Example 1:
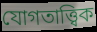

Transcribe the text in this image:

যোগতাত্ত্বিক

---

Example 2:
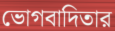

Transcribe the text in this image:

ভোগবাদিতার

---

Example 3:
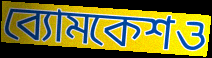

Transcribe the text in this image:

ব্যোমকেশও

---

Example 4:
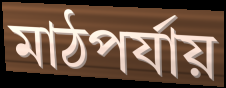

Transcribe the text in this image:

মাঠপর্যায়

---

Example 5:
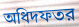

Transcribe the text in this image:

অধিদফতর